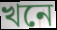
খনে